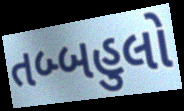
તબ્બહુલો